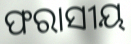
ଫରାସୀୟ